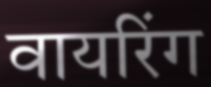
वायरिंग